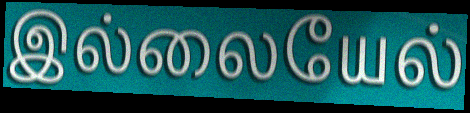
இல்லையேல்